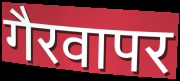
गैरवापर